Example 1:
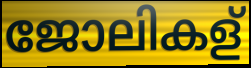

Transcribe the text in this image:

ജോലികള്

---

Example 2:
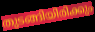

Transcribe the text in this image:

തുടങ്ങിയിരിക്കും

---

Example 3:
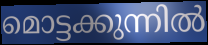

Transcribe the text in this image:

മൊട്ടക്കുന്നിൽ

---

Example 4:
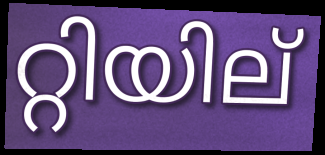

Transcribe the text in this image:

റ്റിയില്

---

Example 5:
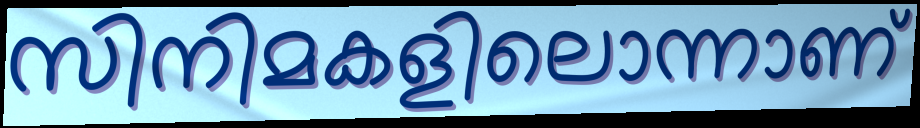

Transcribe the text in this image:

സിനിമകളിലൊന്നാണ്